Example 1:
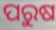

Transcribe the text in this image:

ପରୁଷ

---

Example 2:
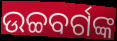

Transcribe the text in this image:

ଉଚ୍ଚବର୍ଗଙ୍କ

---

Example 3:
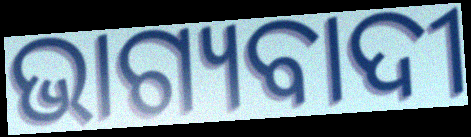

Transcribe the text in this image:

ଭାଗ୍ୟବାଦୀ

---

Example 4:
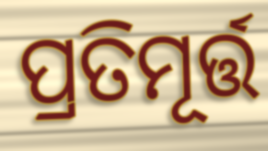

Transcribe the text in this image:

ପ୍ରତିମୂର୍ତ୍ତ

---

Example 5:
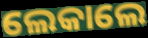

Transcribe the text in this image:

ଲେକାଲେ